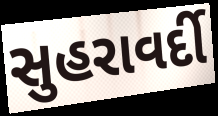
સુહરાવર્દી